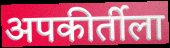
अपकीर्तीला